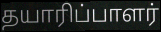
தயாரிப்பாளர்